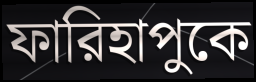
ফারিহাপুকে